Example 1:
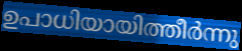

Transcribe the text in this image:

ഉപാധിയായിത്തീർന്നു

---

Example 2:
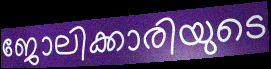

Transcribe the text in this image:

ജോലിക്കാരിയുടെ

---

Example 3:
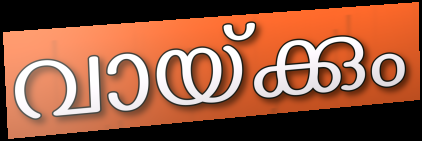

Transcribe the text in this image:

വായ്‌ക്കും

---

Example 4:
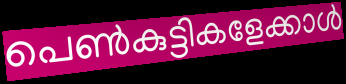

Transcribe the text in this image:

പെൺകുട്ടികളേക്കാൾ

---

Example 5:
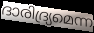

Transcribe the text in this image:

ദാരിദ്ര്യമെന്ന